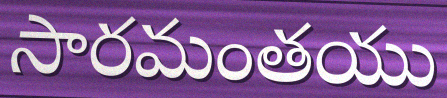
సారమంతయు